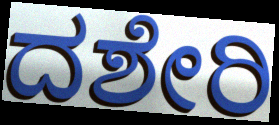
ದಶೇರಿ